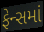
ફેન્સમાં